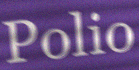
Polio